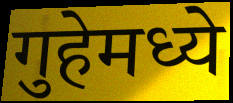
गुहेमध्ये